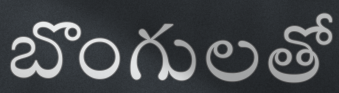
బొంగులతో